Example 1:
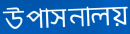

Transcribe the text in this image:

উপাসনালয়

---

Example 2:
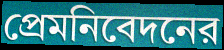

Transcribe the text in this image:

প্রেমনিবেদনের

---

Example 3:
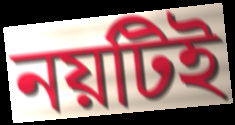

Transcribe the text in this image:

নয়টিই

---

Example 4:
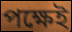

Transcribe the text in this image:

পক্ষেই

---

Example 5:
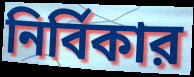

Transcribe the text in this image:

নির্বিকার